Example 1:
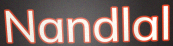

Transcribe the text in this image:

Nandlal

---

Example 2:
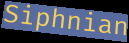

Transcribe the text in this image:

Siphnian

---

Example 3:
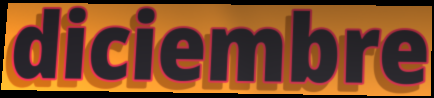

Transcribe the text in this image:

diciembre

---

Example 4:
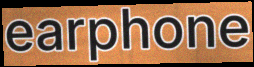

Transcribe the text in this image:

earphone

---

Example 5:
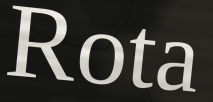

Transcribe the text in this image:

Rota